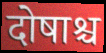
दोषाश्च